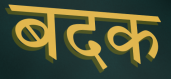
बदक